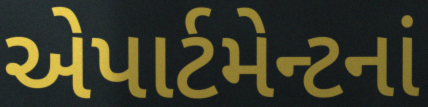
એપાર્ટમેન્ટનાં